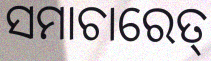
ସମାଚାରେତ୍